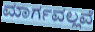
ಮಾರ್ಗವಲ್ಲವೆ